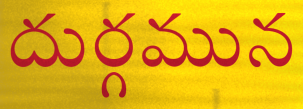
దుర్గమున